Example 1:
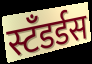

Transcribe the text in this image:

स्टँडर्डस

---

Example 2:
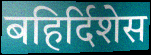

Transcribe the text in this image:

बहिर्दिशेस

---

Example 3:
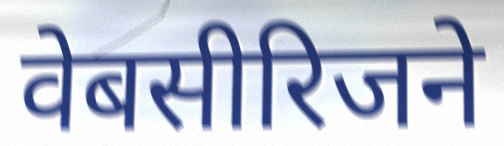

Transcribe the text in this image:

वेबसीरिजने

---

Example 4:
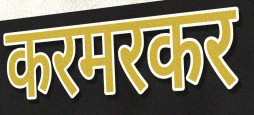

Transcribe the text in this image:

करमरकर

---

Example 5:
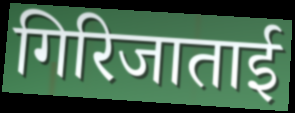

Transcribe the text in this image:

गिरिजाताई